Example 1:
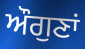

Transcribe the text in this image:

ਔਗੁਣਾਂ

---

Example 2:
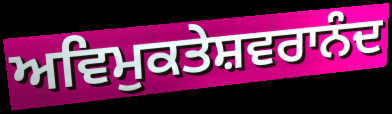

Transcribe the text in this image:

ਅਵਿਮੁਕਤੇਸ਼ਵਰਾਨੰਦ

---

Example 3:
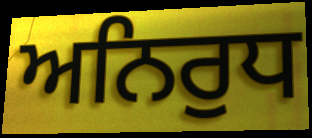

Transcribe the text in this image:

ਅਨਿਰੁਧ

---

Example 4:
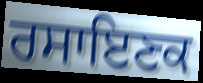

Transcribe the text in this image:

ਰਸਾਇਣਕ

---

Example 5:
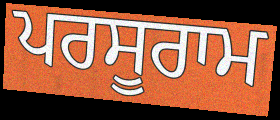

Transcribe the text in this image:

ਪਰਸੂਰਾਮ